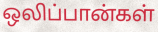
ஒலிப்பான்கள்